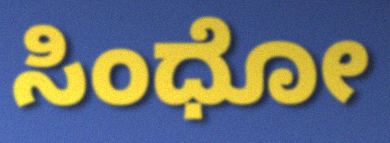
ಸಿಂಧೋ